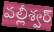
వల్లీశ్వర్